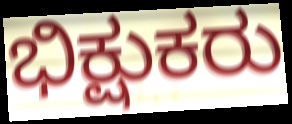
ಭಿಕ್ಷುಕರು